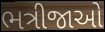
ભત્રીજાઓ